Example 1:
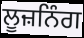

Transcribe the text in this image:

ਲੂਜ਼ਨਿੰਗ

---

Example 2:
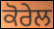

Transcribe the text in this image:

ਕੋਰੇਲ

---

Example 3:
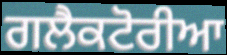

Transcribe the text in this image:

ਗਲੈਕਟੋਰੀਆ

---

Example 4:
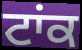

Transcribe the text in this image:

ਟਾਂਕ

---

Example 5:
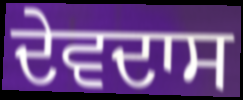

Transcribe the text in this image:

ਦੇਵਦਾਸ